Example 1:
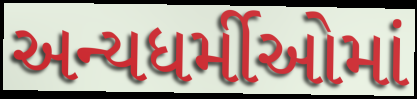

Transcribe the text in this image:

અન્યધર્મીઓમાં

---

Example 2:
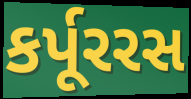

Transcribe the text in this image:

કર્પૂરરસ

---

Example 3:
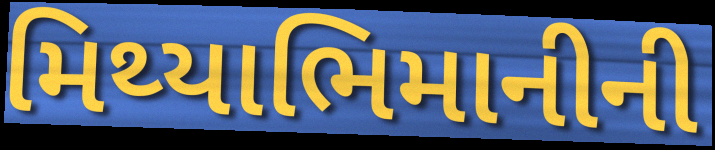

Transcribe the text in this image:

મિથ્યાભિમાનીની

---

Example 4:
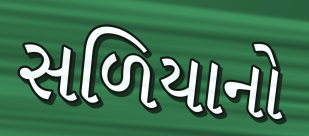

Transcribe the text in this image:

સળિયાનો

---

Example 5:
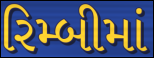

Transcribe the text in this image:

રિમ્બીમાં